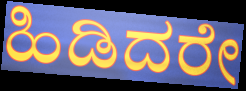
ಹಿಡಿದರೇ